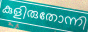
കുളിരുതോന്നി